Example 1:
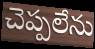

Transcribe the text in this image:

చెప్పలేను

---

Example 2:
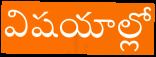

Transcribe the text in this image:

విషయాల్లో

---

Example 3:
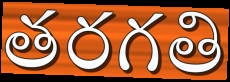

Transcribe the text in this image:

తరగతి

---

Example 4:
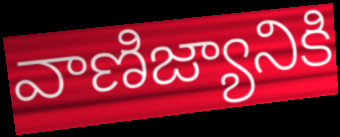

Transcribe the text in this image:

వాణిజ్యానికి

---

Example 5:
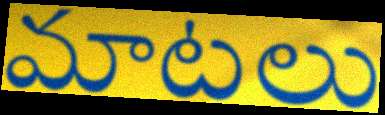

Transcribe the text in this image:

మాటలు